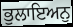
ਭੁਲਾਇਅਨੁ